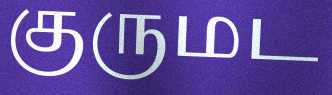
குருமட